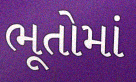
ભૂતોમાં